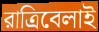
রাত্রিবেলাই